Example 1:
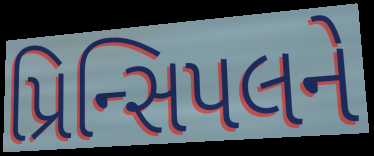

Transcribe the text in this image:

પ્રિન્સિપલને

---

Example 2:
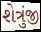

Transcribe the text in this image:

શેત્રુંજી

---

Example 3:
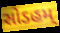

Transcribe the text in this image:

સોડહમ્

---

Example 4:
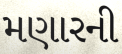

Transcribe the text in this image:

મણારની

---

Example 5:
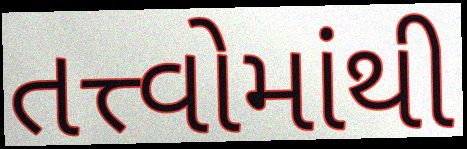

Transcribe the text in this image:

તત્ત્વોમાંથી